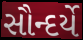
સૌન્દર્યે